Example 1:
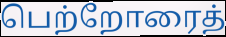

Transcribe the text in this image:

பெற்றோரைத்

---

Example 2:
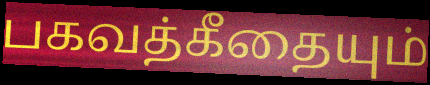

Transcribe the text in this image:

பகவத்கீதையும்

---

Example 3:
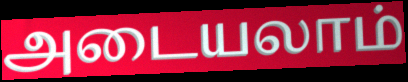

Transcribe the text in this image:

அடையலாம்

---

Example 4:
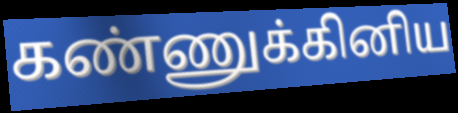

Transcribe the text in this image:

கண்ணுக்கினிய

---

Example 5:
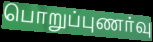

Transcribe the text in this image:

பொறுப்புணர்வு